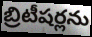
బ్రిటీషర్లను